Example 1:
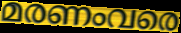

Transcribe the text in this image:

മരണംവരെ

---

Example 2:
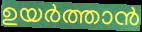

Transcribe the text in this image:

ഉയർത്താൻ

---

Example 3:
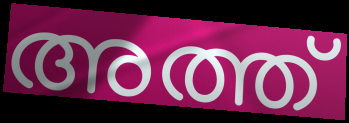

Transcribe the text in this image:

അത്ത്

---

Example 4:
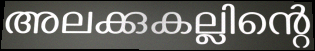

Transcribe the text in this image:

അലക്കുകല്ലിന്റെ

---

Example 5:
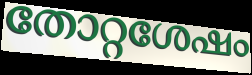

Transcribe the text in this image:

തോറ്റശേഷം